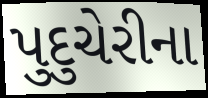
પુદુચેરીના